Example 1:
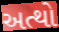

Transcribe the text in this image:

અત્થો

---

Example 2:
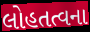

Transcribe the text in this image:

લોહતત્વના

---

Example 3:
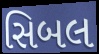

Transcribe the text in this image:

સિબલ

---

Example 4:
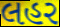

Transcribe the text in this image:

લહર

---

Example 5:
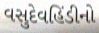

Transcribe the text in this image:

વસુદેવહિંડીનો